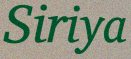
Siriya